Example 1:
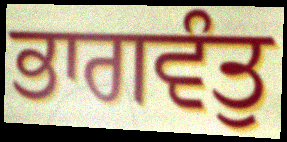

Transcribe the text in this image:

ਭਾਗਵੰਤੁ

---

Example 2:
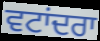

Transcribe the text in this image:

ਵਟਾਂਦਰਾ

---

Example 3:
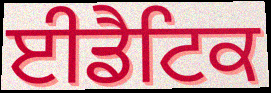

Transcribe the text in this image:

ਈਡੈਟਿਕ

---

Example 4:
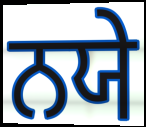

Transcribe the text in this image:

ਨਯੇ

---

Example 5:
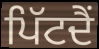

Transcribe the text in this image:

ਪਿੱਟਦੈਂ